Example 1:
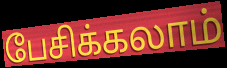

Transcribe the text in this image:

பேசிக்கலாம்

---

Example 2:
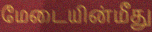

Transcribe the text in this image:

மேடையின்மீது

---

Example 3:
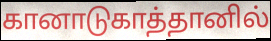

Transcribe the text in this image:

கானாடுகாத்தானில்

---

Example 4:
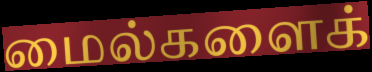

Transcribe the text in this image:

மைல்களைக்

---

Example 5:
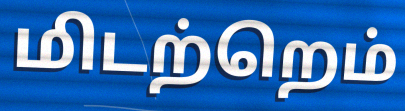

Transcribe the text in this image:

மிடற்றெம்